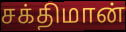
சக்திமான்